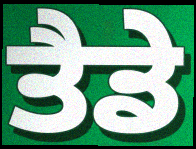
ਤੈਡੇ